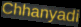
Chhanyadi